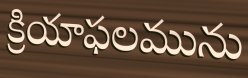
క్రియాఫలమును